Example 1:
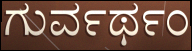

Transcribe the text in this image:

ಗುರ್ವರ್ಥಂ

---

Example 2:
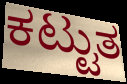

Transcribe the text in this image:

ಕಟ್ಟುತ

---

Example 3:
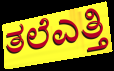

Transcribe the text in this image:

ತಲೆಎತ್ತಿ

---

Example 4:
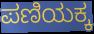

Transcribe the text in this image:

ಪಣಿಯಕ್ಕ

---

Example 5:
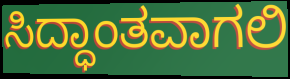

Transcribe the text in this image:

ಸಿದ್ಧಾಂತವಾಗಲಿ